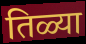
तिळ्या